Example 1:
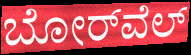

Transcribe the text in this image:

ಬೋರ್‌ವೆಲ್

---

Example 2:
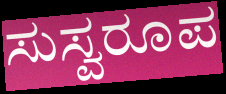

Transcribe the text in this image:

ಸುಸ್ವರೂಪ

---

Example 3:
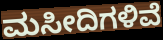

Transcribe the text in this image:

ಮಸೀದಿಗಳಿವೆ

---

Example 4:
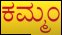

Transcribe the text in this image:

ಕಮ್ಮಂ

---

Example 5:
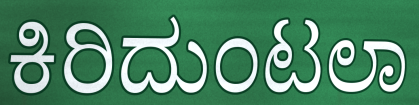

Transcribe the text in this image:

ಕಿರಿದುಂಟಲಾ